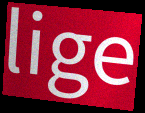
lige